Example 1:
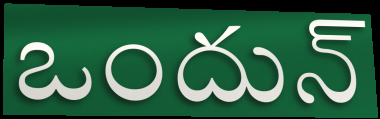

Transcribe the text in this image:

ఒందున్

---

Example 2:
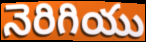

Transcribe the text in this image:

నెరిగియు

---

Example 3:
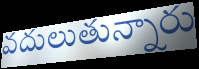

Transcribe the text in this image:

వదులుతున్నారు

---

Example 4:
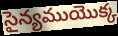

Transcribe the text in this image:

సైన్యముయొక్క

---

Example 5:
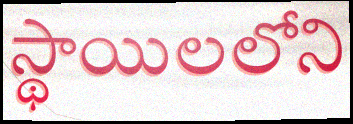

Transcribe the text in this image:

స్థాయిలలోని